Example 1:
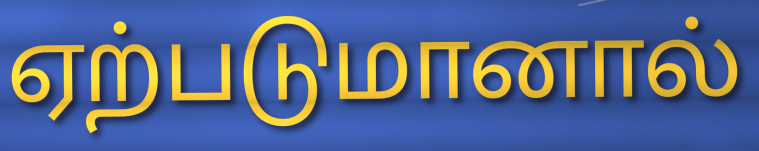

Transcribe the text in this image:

ஏற்படுமானால்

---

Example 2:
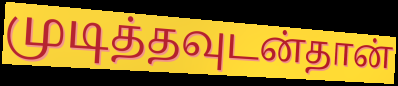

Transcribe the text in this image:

முடித்தவுடன்தான்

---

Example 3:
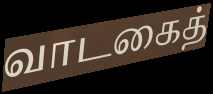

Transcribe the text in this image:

வாடகைத்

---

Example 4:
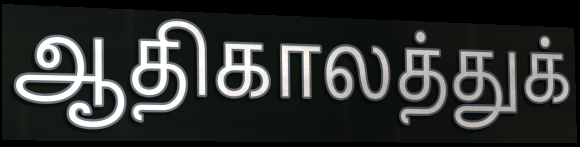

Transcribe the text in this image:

ஆதிகாலத்துக்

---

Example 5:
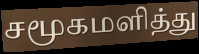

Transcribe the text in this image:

சமூகமளித்து